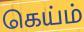
கெய்ம்